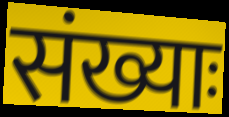
संख्याः